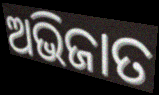
ଅଭିଜାତ